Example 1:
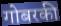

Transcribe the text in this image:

गोबरकी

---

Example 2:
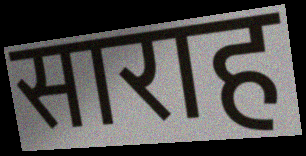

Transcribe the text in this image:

साराह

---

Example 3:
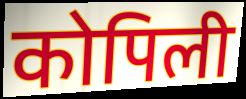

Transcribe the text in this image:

कोपिली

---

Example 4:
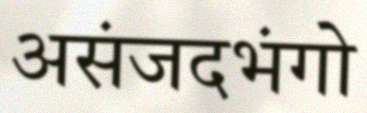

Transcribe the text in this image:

असंजदभंगो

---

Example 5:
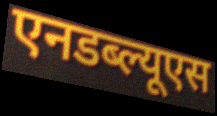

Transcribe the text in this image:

एनडब्ल्यूएस